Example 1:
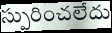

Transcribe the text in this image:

స్పురించలేదు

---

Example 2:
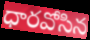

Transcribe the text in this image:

ధారవోసిన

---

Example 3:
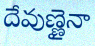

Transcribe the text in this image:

దేవుణ్ణైనా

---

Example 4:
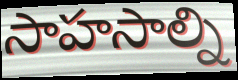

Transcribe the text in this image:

సాహసాల్ని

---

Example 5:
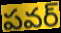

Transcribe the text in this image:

పవర్